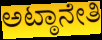
ಅಟ್ಠಾನೇತಿ